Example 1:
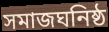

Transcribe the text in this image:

সমাজঘনিষ্ঠ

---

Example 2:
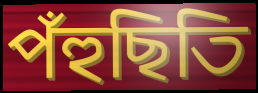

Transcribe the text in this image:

পঁহুছিতি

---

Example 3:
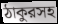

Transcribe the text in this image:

ঠাকুরসহ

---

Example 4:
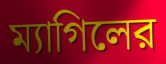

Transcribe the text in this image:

ম্যাগিলের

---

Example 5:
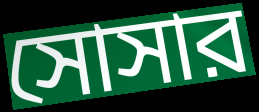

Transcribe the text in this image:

সোসার